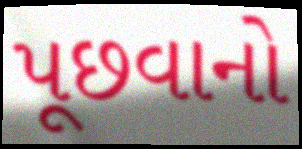
પૂછવાનો